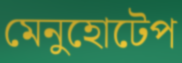
মেনুহোটেপ